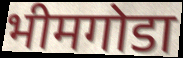
भीमगोडा